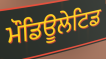
ਮੌਡਿਊਲੇਟਿਡ